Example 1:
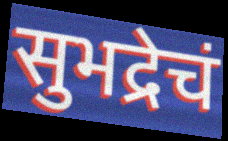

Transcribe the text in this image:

सुभद्रेचं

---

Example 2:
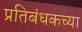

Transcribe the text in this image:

प्रतिबंधकच्या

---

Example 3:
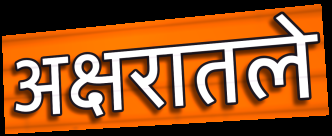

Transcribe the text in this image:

अक्षरातले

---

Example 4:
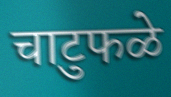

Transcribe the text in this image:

चाटुफळे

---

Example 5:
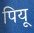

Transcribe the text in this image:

पियू